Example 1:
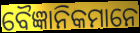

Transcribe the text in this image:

ବୈଜ୍ଞାନିକମାନେ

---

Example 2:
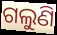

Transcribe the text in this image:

ଗଲୁଣି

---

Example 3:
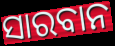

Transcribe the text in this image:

ସାରବାନ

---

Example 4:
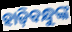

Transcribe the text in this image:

ହାଡ଼ିବନ୍ଧୁଙ୍କ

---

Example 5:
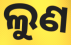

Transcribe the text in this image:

ଲୁଣ